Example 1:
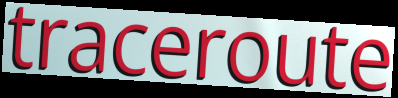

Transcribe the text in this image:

traceroute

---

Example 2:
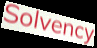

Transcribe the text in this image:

Solvency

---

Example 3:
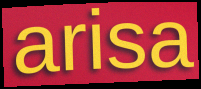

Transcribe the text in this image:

arisa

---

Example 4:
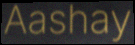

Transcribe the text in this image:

Aashay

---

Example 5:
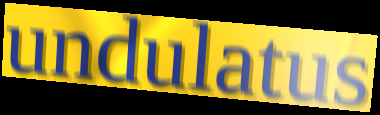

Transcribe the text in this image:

undulatus